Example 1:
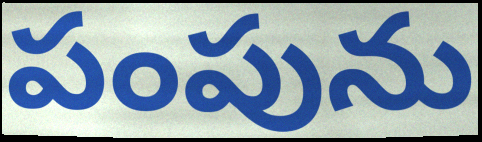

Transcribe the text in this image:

పంపును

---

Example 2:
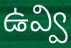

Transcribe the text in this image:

ఉవ్వి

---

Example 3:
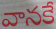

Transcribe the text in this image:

వానకే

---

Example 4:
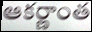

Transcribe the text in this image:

ఆకర్ణాంత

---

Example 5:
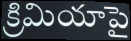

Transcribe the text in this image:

క్రిమియాపై